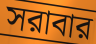
সরাবার